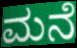
ಮನೆ